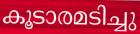
കൂടാരമടിച്ചു